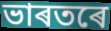
ভাৰতৰে